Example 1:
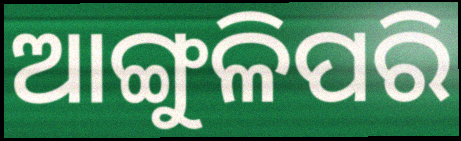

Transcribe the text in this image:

ଆଙ୍ଗୁଳିପରି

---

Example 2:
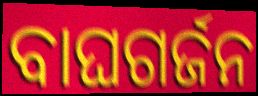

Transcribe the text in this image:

ବାଘଗର୍ଜନ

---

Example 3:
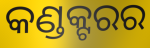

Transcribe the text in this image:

କଣ୍ଡକ୍ଟରର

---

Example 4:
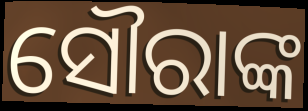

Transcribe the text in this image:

ସୌରାଙ୍କ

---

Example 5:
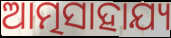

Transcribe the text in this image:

ଆତ୍ମସାହାଯ୍ୟ